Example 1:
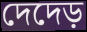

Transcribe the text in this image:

দেদেড়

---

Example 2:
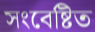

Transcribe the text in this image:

সংবেষ্টিত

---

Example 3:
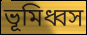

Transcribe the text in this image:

ভূমিধ্বস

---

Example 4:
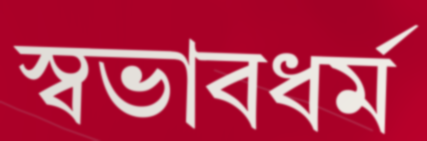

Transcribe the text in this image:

স্বভাবধর্ম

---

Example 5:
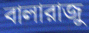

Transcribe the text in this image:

বালারাজু